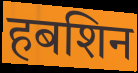
हबशिन